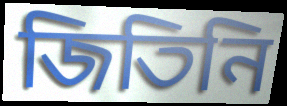
জিতিনি